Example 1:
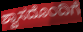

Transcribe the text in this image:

ಶ್ವಾಸದೊಂದಿಗೆ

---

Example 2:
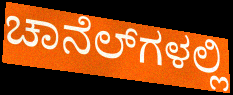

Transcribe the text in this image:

ಚಾನೆಲ್‍ಗಳಲ್ಲಿ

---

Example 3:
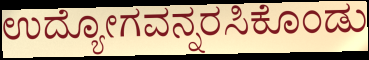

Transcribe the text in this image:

ಉದ್ಯೋಗವನ್ನರಸಿಕೊಂಡು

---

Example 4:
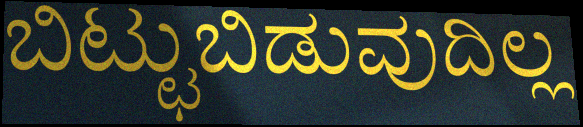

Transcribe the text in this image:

ಬಿಟ್ಟುಬಿಡುವುದಿಲ್ಲ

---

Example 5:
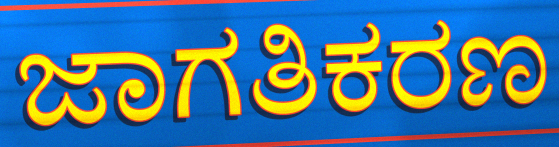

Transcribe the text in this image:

ಜಾಗತಿಕರಣ